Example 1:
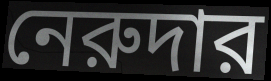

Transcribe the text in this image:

নেরুদার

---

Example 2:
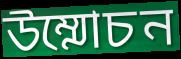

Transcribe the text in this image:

উম্মোচন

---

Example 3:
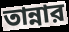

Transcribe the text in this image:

তান্নার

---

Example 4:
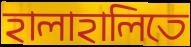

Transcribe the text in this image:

হালাহালিতে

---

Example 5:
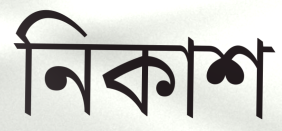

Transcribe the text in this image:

নিকাশ